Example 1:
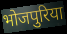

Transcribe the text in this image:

भोजपुरिया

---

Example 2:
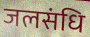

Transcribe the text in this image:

जलसंधि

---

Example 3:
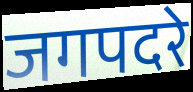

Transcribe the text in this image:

जगपदरे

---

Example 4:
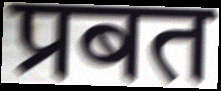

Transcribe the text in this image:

प्रबत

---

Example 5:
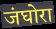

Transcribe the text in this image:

जंघोरा